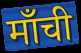
माँची